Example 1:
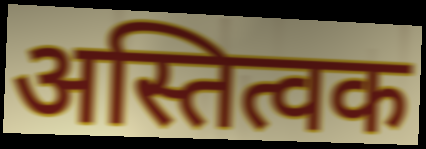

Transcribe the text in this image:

अस्तित्वक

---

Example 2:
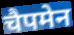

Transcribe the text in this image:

चैपमेन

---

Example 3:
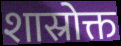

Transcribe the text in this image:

शास्रोक्त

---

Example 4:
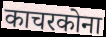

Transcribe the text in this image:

काचरकोना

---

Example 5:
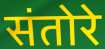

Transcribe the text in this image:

संतोरे